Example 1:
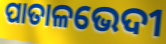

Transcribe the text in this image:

ପାତାଳଭେଦୀ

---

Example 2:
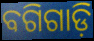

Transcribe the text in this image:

ବଗିଗାଡ଼ି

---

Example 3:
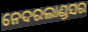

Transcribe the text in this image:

ନେଦରଲାଣ୍ଡସର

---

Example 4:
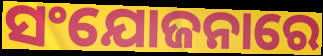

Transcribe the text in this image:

ସଂଯୋଜନାରେ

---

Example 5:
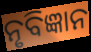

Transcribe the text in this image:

ନୃବିଜ୍ଞାନ